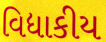
વિદ્યાકીય